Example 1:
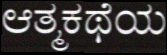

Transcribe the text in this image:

ಆತ್ಮಕಥೆಯ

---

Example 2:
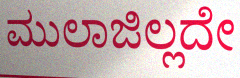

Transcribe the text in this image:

ಮುಲಾಜಿಲ್ಲದೇ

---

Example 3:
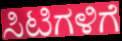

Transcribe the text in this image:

ಸಿಟಿಗಳಿಗೆ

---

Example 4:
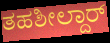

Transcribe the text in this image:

ತಹಶೀಲ್ದಾರ್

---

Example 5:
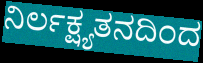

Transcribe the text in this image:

ನಿರ್ಲಕ್ಷ್ಯತನದಿಂದ